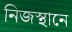
নিজস্থানে